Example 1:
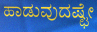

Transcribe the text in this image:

ಹಾಡುವುದಷ್ಟೇ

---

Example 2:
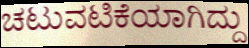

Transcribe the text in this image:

ಚಟುವಟಿಕೆಯಾಗಿದ್ದು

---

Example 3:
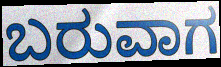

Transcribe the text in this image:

ಬರುವಾಗ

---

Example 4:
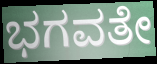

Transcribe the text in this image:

ಭಗವತೇ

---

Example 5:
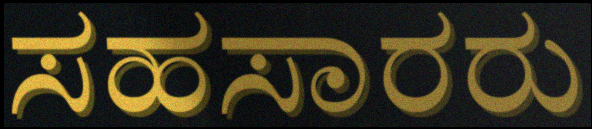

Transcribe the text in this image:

ಸಹಸಾರರು